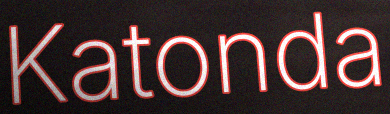
Katonda